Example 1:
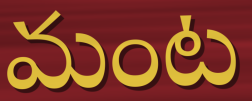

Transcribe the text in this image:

మంట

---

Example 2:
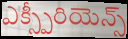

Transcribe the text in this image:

ఎక్స్పీరియెన్స్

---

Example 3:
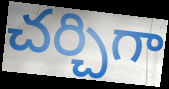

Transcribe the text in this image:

చర్చిగా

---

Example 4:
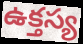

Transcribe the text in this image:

ఉక్తస్య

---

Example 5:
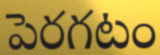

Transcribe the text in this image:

పెరగటం